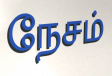
நேசம்